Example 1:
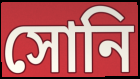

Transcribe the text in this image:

সোনি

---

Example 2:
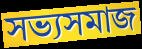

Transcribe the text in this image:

সভ্যসমাজ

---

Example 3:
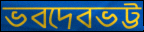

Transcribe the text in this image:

ভবদেবভট্ট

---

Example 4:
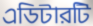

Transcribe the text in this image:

এডিটারটি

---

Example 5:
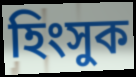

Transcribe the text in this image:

হিংসুক